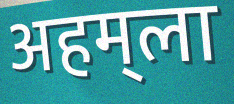
अहम्‌ला